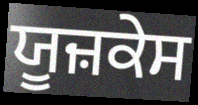
ਯੂਜ਼ਕੇਸ